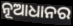
ନୂଆଧାନର